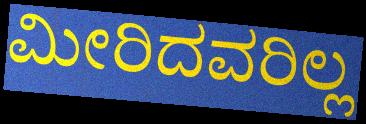
ಮೀರಿದವರಿಲ್ಲ